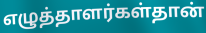
எழுத்தாளர்கள்தான்